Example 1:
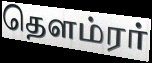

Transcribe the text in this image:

தௌம்ரர்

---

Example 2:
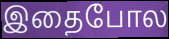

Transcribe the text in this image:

இதைபோல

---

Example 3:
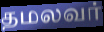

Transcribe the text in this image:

தமலவர்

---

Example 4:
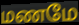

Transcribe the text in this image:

மணமே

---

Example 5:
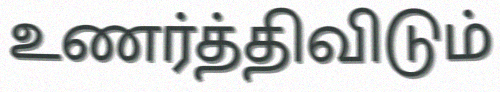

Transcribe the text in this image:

உணர்த்திவிடும்